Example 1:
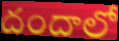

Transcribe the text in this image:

దందాలో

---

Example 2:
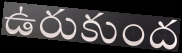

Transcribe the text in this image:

ఉరుకుంద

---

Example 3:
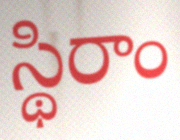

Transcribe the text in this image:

స్థిరాం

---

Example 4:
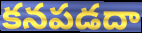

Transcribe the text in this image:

కనపడదా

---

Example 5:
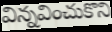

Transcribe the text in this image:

విన్నవించుకొని